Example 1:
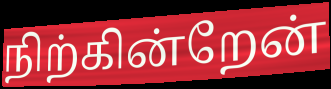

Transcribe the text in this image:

நிற்கின்றேன்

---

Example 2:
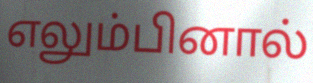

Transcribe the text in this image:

எலும்பினால்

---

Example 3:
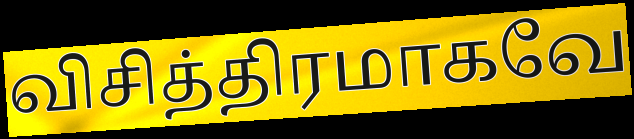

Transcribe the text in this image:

விசித்திரமாகவே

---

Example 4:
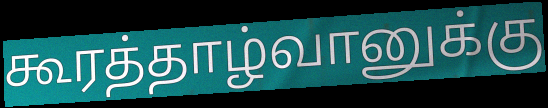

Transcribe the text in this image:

கூரத்தாழ்வானுக்கு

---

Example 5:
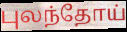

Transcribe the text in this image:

புலந்தோய்